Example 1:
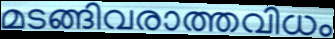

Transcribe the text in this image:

മടങ്ങിവരാത്തവിധം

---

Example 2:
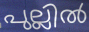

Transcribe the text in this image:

പുല്ലിൽ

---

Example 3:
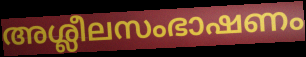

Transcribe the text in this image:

അശ്ലീലസംഭാഷണം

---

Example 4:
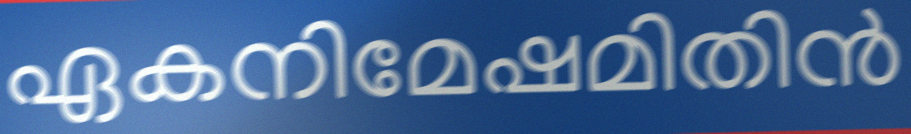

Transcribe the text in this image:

ഏകനിമേഷമിതിൻ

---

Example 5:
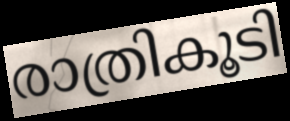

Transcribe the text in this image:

രാത്രികൂടി